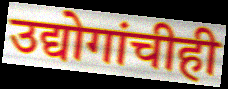
उद्योगांचीही